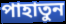
পাহাতুন